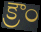
క్రౌం